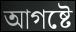
আগষ্টে